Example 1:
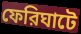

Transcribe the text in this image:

ফেরিঘাটে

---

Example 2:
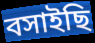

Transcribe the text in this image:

বসাইছি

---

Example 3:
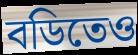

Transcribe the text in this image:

বডিতেও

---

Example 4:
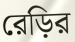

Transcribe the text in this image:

রেড়ির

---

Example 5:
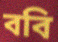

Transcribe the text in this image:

ববি